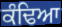
ਕੰਢਿਆ